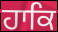
ਹਾਕਿ